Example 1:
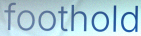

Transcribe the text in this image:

foothold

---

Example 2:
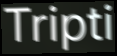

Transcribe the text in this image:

Tripti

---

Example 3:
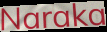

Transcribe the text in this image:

Naraka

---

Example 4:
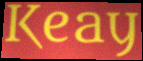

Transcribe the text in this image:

Keay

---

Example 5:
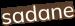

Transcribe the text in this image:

sadane